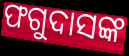
ଫଗୁଦାସଙ୍କ